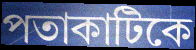
পতাকাটিকে